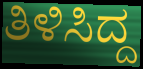
ತಿಳಿಸಿದ್ದ